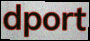
dport